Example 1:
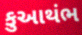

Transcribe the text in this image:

કુઆથંભ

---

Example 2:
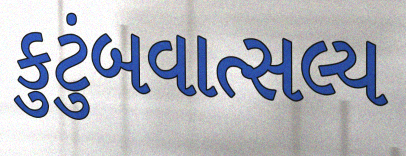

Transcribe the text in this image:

કુટુંબવાત્સલ્ય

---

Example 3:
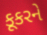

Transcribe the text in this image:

કૂકરને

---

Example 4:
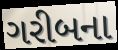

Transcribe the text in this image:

ગરીબના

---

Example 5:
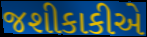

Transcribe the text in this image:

જશીકાકીએ